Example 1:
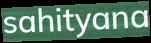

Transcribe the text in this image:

sahityana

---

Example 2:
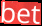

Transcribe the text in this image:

bet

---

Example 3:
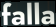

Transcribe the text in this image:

falla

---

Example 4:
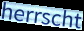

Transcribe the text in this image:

herrscht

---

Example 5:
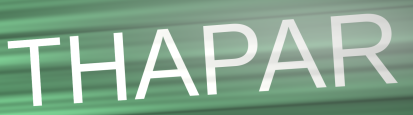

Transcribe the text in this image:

THAPAR